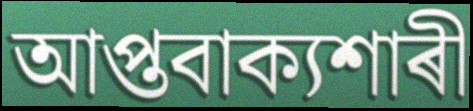
আপ্তবাক্যশাৰী